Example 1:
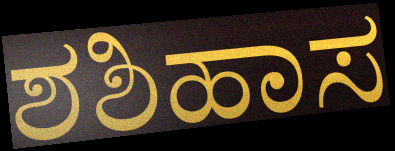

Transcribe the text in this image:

ಶಶಿಹಾಸ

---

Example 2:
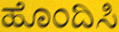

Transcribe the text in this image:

ಹೊಂದಿಸಿ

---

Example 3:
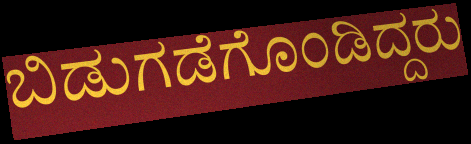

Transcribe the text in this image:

ಬಿಡುಗಡೆಗೊಂಡಿದ್ದರು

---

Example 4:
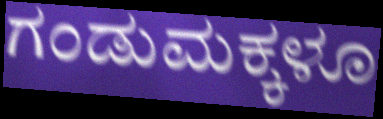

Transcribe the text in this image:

ಗಂಡುಮಕ್ಕಳೂ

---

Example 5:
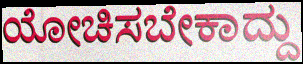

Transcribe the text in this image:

ಯೋಚಿಸಬೇಕಾದ್ದು